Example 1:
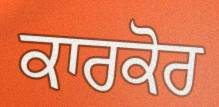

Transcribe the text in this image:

ਕਾਰਕੋਰ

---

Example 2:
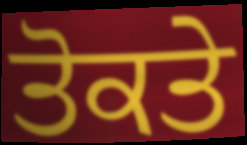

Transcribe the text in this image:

ਤੋਕਤੇ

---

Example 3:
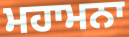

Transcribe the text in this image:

ਮਹਾਮਨਾ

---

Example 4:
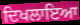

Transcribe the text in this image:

ਦਿਖਲਾਇਆ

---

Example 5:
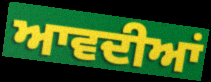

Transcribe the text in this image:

ਆਵਦੀਆਂ